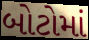
બોટોમાં